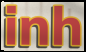
inh